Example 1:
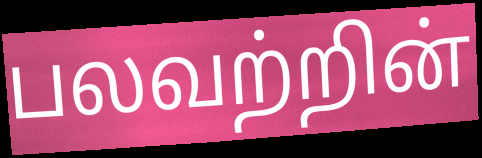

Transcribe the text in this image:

பலவற்றின்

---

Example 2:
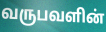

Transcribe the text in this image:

வருபவளின்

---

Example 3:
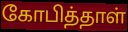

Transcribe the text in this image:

கோபித்தாள்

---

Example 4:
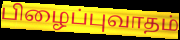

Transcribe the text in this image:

பிழைப்புவாதம்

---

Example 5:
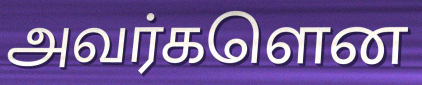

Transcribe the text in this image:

அவர்களென